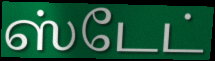
ஸ்டேட்